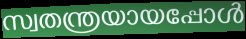
സ്വതന്ത്രയായപ്പോൾ